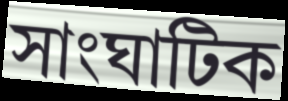
সাংঘাটিক